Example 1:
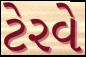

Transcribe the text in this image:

ટેરવે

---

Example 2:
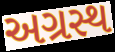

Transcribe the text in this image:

અગ્રસ્થ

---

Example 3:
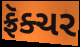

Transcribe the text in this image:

ફ્રૅક્ચર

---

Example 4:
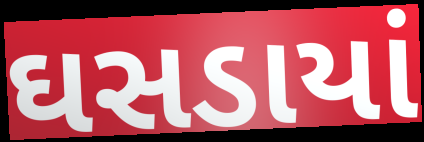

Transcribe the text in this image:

ઘસડાયાં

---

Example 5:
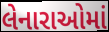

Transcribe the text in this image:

લેનારાઓમાં